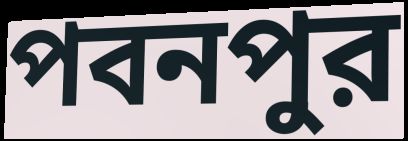
পবনপুর